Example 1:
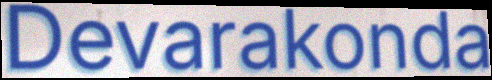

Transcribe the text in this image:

Devarakonda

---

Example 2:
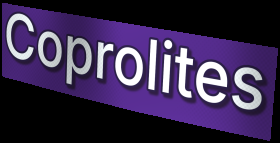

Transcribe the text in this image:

Coprolites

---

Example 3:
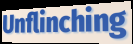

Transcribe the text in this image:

Unflinching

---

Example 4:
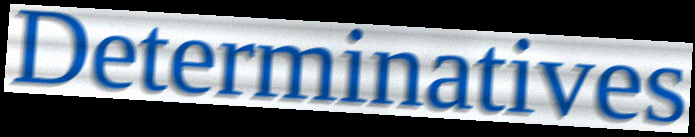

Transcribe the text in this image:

Determinatives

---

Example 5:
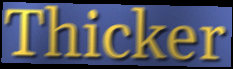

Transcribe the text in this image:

Thicker